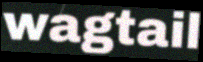
wagtail